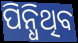
ପିନ୍ଧିଥିବ